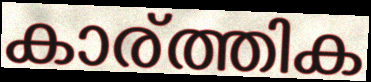
കാര്ത്തിക